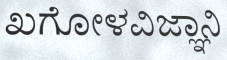
ಖಗೋಳವಿಜ್ಞಾನಿ